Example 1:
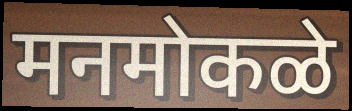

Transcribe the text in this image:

मनमोकळे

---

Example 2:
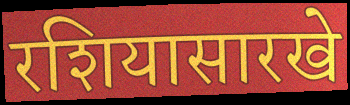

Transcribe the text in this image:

रशियासारखे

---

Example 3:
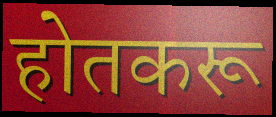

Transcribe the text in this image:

होतकरू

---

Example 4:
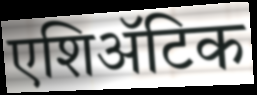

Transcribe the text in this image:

एशिॲटिक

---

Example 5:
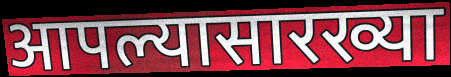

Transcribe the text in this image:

आपल्यासारख्या